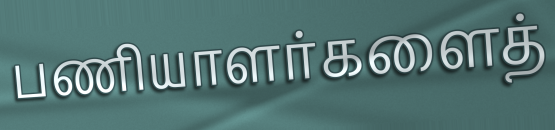
பணியாளர்களைத்